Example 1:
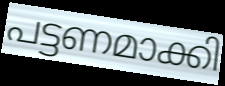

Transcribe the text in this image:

പട്ടണമാക്കി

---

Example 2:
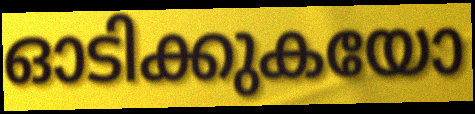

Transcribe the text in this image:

ഓടിക്കുകയോ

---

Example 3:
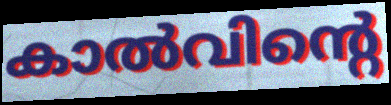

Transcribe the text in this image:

കാൽവിന്റെ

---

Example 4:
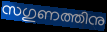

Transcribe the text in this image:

സഗുണത്തിനു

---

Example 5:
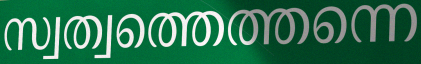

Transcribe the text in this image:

സ്വത്വത്തെത്തന്നെ